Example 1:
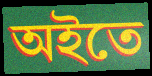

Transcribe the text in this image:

অইতে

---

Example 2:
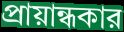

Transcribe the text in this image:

প্রায়ান্ধকার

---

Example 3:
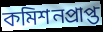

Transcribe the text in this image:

কমিশনপ্রাপ্ত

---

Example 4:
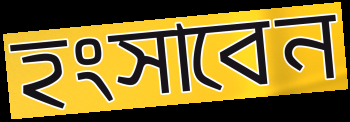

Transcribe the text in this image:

হংসাবেন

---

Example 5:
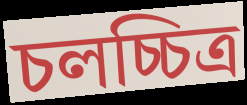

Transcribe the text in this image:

চলচ্চিত্র